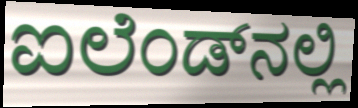
ಐಲೆಂಡ್‌ನಲ್ಲಿ